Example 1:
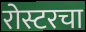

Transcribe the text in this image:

रोस्टरचा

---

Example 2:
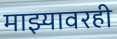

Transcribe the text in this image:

माझ्यावरही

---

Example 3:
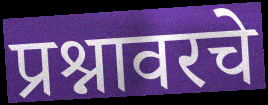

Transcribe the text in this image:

प्रश्नावरचे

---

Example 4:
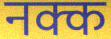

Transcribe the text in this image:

नक्क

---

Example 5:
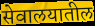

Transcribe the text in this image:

सेवालयातील